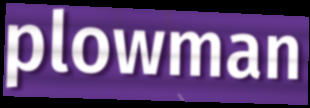
plowman